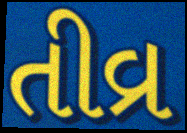
તીવ્ર